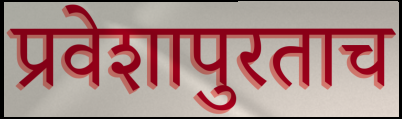
प्रवेशापुरताच